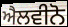
ਐਲਵੀਨੋ